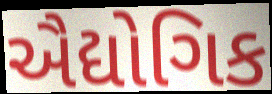
ઐદ્યોગિક